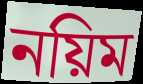
নয়িম